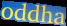
oddha